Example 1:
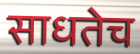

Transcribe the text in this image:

साधतेच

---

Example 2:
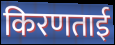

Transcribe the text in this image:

किरणताई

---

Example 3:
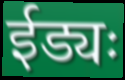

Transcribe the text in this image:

ईड्यः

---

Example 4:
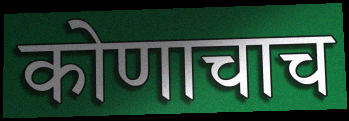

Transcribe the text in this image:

कोणाचाच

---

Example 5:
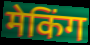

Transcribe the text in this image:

मेकिंग